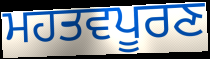
ਮਹਤਵਪੂਰਣ